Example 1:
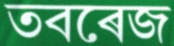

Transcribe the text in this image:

তবৰেজ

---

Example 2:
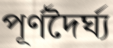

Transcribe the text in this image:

পূৰ্ণদৈৰ্ঘ্য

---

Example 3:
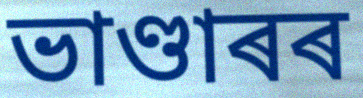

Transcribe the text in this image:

ভাণ্ডাৰৰ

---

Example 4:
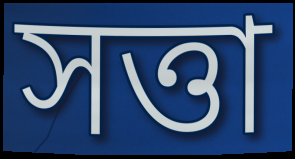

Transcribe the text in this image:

সত্তা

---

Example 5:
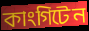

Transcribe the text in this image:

কাংগিটেন